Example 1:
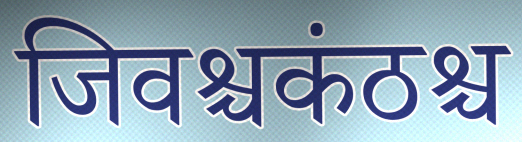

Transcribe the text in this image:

जिवश्चकंठश्च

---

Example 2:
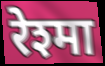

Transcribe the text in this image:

रेश्मा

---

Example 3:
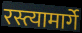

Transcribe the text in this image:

रस्त्यामार्गे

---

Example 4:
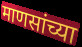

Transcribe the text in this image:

माणसांच्या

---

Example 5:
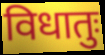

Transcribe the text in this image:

विधातुः